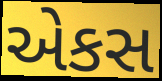
એકસ